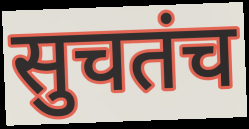
सुचतंच